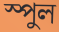
স্পুল